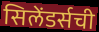
सिलेंडर्सची